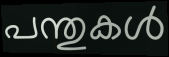
പന്തുകൾ